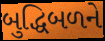
બુદ્ધિબળને